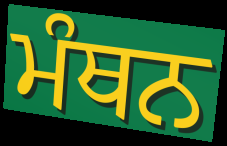
ਮੰਥਨ